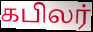
கபிலர்